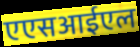
एएसआईएल